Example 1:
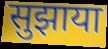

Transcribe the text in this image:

सुझाया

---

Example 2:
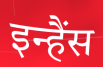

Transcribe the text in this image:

इन्हैंस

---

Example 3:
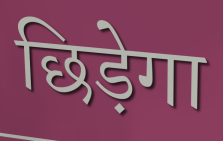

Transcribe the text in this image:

छिड़ेगा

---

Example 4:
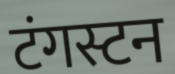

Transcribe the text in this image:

टंगस्टन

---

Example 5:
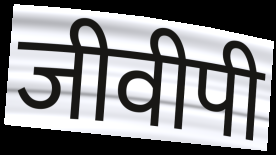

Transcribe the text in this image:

जीवीपी